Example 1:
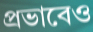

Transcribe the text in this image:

প্রভাবেও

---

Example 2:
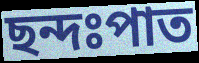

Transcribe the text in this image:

ছন্দঃপাত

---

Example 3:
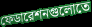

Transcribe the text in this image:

ফেডারেশনগুলোতে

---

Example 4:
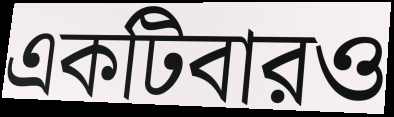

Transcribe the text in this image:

একটিবারও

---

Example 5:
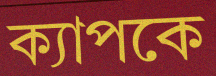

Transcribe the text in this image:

ক্যাপকে